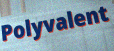
Polyvalent